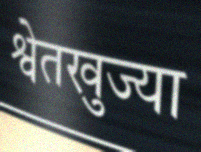
श्वेतखुज्या